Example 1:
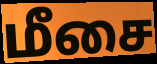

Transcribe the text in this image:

மீசை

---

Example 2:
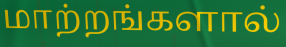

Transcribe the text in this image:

மாற்றங்களால்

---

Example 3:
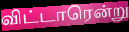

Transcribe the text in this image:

விட்டாரென்று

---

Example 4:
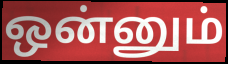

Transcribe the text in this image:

ஒன்னும்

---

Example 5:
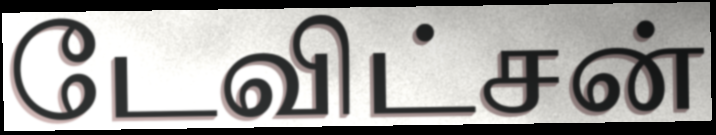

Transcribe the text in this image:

டேவிட்சன்